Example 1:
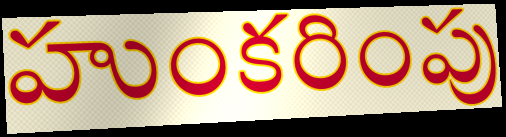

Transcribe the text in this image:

హుంకరింపు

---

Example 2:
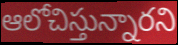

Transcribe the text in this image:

ఆలోచిస్తున్నారని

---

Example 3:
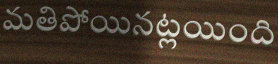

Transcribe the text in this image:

మతిపోయినట్లయింది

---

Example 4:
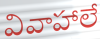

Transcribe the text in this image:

వివాహాలే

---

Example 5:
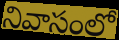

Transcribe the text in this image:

నివాసంలో